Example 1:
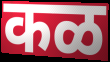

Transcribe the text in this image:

कळ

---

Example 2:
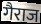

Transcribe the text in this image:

गैराज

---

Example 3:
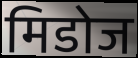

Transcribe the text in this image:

मिडोज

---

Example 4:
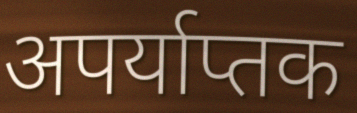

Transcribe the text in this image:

अपर्याप्तक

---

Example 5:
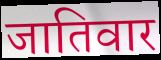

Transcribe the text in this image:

जातिवार